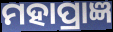
ମହାପ୍ରାଜ୍ଞ